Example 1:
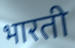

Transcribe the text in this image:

भारती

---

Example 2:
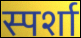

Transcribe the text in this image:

स्पर्शा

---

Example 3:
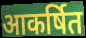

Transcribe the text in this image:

आकर्षित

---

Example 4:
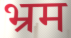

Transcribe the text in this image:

भ्रम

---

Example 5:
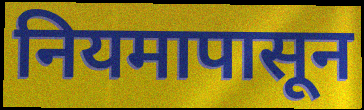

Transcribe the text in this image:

नियमापासून